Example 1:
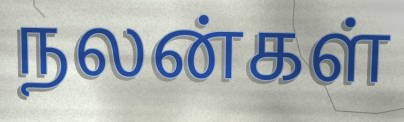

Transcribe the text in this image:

நலன்கள்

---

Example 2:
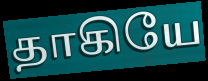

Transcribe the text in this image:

தாகியே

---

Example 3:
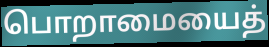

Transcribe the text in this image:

பொறாமையைத்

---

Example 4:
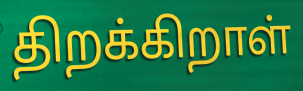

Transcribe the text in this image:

திறக்கிறாள்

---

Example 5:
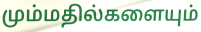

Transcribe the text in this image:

மும்மதில்களையும்